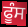
ਫੂੰਸ